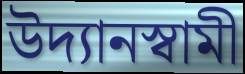
উদ্যানস্বামী